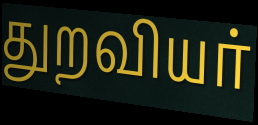
துறவியர்